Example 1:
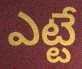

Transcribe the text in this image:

ఎట్టే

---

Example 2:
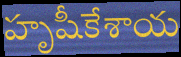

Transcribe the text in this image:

హృషీకేశాయ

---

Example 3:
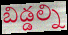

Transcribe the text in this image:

బిడ్డల్ని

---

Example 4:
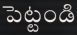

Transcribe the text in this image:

పెట్టండి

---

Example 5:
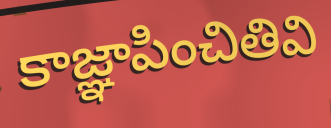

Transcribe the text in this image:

కాజ్ఞాపించితివి